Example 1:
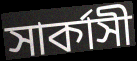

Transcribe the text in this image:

সার্কাসী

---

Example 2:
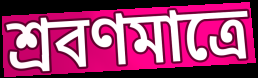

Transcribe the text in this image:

শ্রবণমাত্রে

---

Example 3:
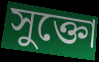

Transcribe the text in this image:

সুক্তো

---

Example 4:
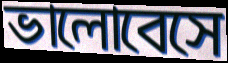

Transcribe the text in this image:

ভালোবেসে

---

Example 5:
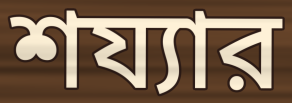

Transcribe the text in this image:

শয্যার